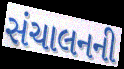
સંચાલનની